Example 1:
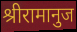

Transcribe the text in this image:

श्रीरामानुज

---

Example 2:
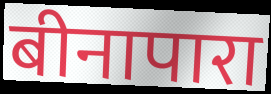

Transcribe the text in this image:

बीनापारा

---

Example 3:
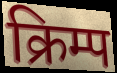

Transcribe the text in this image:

क्रिम्प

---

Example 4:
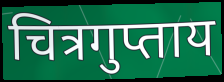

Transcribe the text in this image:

चित्रगुप्ताय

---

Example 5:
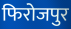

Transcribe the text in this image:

फिरोजपुर